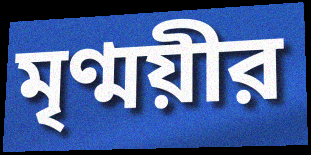
মৃণ্ময়ীর